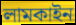
লামকাইন